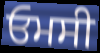
ਓਮਸੀ